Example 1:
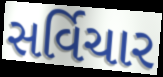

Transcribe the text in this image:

સર્વિચાર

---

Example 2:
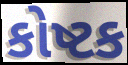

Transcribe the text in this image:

કોષ્ટક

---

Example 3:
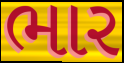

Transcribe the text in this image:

ભાર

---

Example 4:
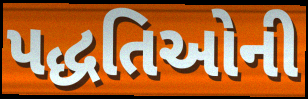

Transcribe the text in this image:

પદ્ધતિઓની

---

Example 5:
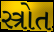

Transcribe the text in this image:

સ્ત્રોત